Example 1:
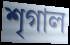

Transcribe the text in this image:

শৃগাল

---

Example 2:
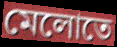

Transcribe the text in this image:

মেলোতে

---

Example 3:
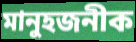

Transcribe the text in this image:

মানুহজনীক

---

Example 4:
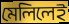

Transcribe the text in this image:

মেলিলেই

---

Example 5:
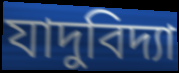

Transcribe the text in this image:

যাদুবিদ্যা